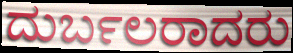
ದುರ್ಬಲರಾದರು